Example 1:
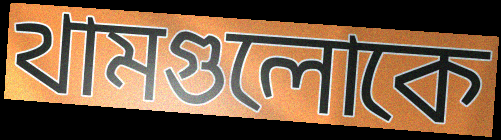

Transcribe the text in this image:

থামগুলোকে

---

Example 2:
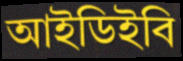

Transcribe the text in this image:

আইডিইবি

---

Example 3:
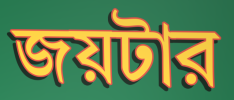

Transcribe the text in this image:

জয়টার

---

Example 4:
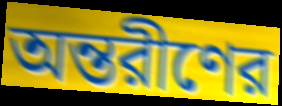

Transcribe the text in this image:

অন্তরীণের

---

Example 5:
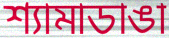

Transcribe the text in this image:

শ্যামাডাঙা